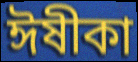
ঈষীকা